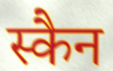
स्कैन